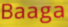
Baaga